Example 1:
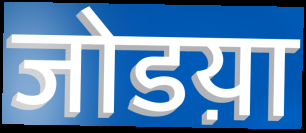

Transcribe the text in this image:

जोडय़ा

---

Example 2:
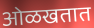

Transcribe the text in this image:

ओळखतात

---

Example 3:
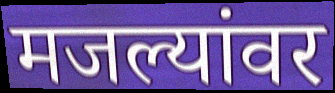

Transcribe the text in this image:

मजल्यांवर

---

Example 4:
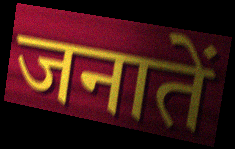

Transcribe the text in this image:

जनातें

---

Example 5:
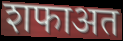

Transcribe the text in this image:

शफाअत